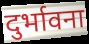
दुर्भावना